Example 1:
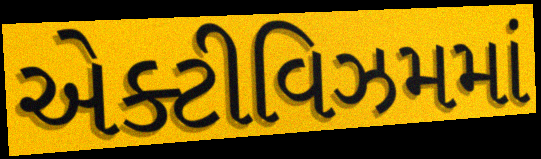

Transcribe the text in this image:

એક્ટીવિઝમમાં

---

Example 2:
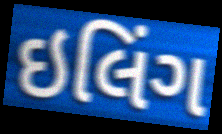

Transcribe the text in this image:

ઇલિંગ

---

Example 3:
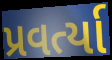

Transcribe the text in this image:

પ્રવર્ત્યા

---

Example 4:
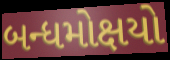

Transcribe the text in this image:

બન્ધમોક્ષયો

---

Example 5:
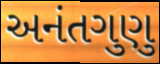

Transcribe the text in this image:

અનંતગુણુ